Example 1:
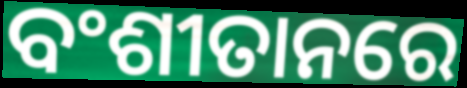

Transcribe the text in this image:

ବଂଶୀତାନରେ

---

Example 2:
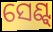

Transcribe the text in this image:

ସେଣ୍ଟ୍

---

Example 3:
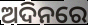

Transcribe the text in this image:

ଅଦିନରେ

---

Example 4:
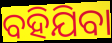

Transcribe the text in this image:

ବହିଯିବା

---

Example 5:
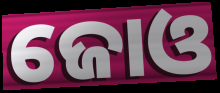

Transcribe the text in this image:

ଜୋଓ